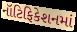
નૉટિફિકેશનમાં